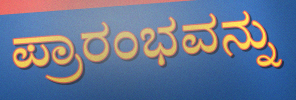
ಪ್ರಾರಂಭವನ್ನು